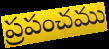
ప్రపంచము